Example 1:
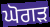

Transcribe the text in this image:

ਘੋਗੜ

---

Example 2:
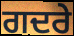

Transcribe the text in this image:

ਗਦਰੇ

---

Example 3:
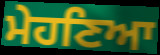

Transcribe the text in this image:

ਮੇਹਣਿਆ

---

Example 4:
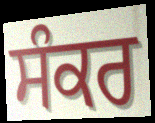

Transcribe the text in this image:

ਸੰਕਰ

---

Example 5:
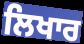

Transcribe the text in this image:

ਲਿਖਾਰ